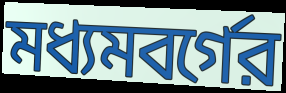
মধ্যমবর্গের